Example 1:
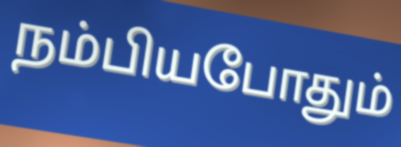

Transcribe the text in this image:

நம்பியபோதும்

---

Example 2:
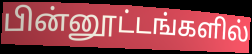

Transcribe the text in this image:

பின்னூட்டங்களில்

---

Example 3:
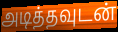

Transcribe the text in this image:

அடித்தவுடன்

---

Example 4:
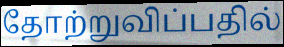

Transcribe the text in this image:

தோற்றுவிப்பதில்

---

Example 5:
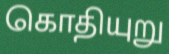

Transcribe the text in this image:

கொதியுறு